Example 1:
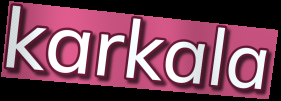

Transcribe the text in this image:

karkala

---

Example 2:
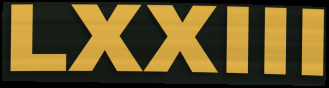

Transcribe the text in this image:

LXXIII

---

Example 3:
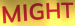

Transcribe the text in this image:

MIGHT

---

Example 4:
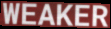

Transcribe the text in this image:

WEAKER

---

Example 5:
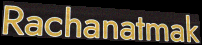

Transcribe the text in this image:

Rachanatmak